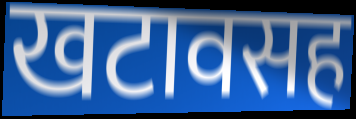
खटावसह